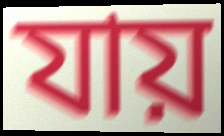
যায়